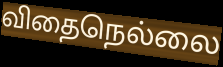
விதைநெல்லை